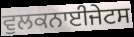
ਵੁਲਕਨਾਈਜੇਟਸ